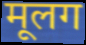
मूलग